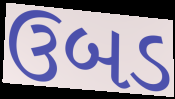
ઉબડ